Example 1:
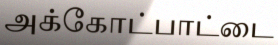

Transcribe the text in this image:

அக்கோட்பாட்டை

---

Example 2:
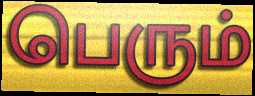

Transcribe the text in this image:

பெரும்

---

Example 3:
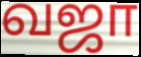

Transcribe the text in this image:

வஜா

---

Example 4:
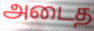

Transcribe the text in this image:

அடைத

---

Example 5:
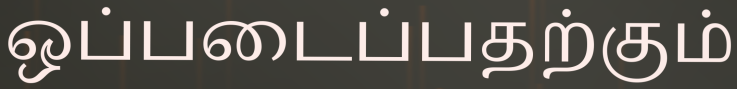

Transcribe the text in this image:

ஒப்படைப்பதற்கும்